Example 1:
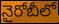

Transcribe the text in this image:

నైరోబీలో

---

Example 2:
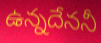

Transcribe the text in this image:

ఉన్నదేననీ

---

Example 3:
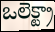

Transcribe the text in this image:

ఒలెక్ట్రా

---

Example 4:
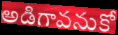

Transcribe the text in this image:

అడిగావనుకో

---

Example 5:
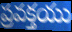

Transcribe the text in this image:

ప్రవక్తయు